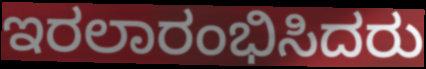
ಇರಲಾರಂಭಿಸಿದರು